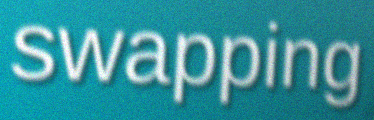
swapping